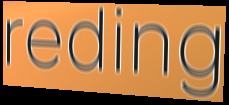
reding